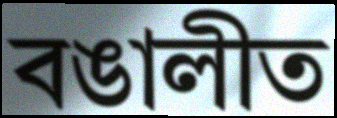
বঙালীত